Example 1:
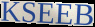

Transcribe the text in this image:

KSEEB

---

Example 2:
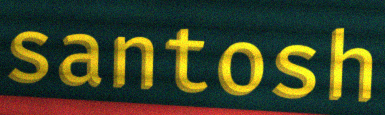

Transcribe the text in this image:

santosh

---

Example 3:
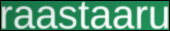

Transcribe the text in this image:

raastaaru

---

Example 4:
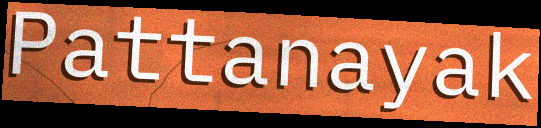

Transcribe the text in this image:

Pattanayak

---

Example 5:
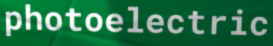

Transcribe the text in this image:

photoelectric